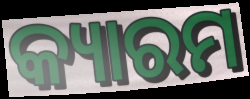
କ୍ୟାରମ